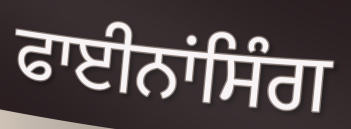
ਫਾਈਨਾਂਸਿੰਗ